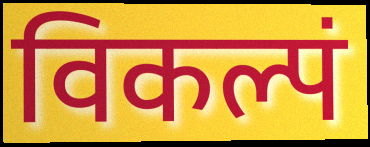
विकल्पं